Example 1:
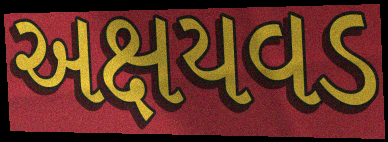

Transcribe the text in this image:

અક્ષયવડ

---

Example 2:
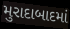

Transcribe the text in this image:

મુરાદાબાદમાં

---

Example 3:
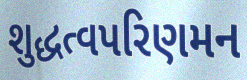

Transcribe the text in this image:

શુદ્ધત્વપરિણમન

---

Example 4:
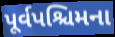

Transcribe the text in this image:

પૂર્વપશ્ચિમના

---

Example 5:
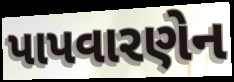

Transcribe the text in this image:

પાપવારણેન